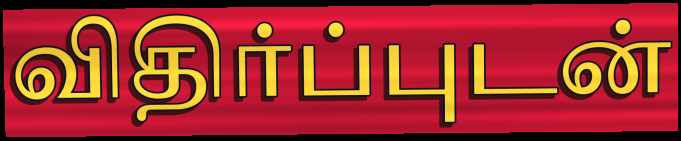
விதிர்ப்புடன்